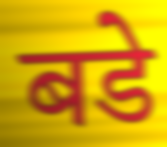
बडे